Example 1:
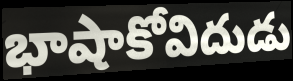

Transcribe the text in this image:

భాషాకోవిదుడు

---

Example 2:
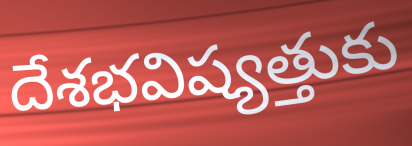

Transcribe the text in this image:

దేశభవిష్యత్తుకు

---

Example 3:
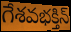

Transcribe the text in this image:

గేశవభక్తిన్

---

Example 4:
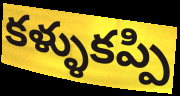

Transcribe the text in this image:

కళ్ళుకప్పి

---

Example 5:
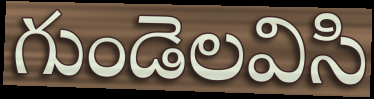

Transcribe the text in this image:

గుండెలవిసి